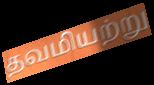
தவமியற்று